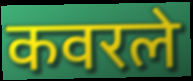
कवरले